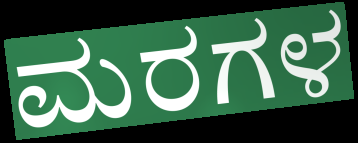
ಮರಗಳ